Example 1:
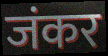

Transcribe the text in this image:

जंकर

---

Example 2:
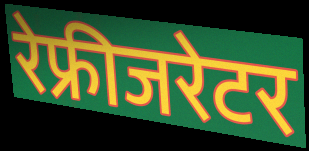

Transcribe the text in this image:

रेफ्रीजरेटर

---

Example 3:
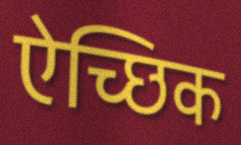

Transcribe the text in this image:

ऐच्छिक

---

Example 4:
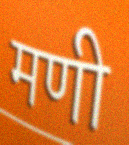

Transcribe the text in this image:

मणी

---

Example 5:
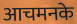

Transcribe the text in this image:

आचमनके